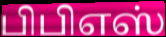
பிபிஎஸ்